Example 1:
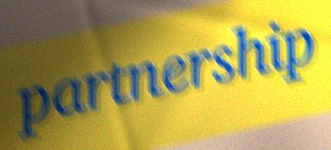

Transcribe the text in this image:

partnership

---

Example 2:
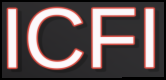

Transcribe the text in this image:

ICFI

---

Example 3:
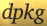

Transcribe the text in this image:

dpkg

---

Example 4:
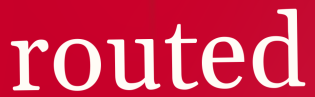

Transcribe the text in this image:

routed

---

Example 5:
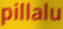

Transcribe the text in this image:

pillalu